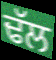
ਢੱਲ